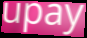
upay